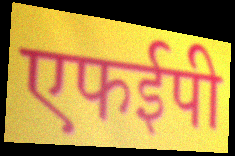
एफईपी